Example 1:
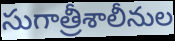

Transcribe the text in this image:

సుగాత్రీశాలీనుల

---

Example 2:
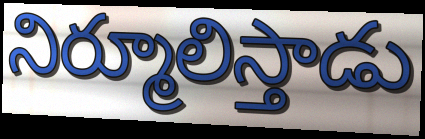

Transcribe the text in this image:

నిర్మూలిస్తాడు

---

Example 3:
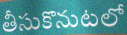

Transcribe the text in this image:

తీసుకొనుటలో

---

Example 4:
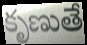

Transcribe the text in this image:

కృణుతే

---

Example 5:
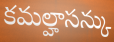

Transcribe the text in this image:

కమల్హాసన్కు